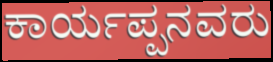
ಕಾರ್ಯಪ್ಪನವರು